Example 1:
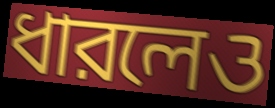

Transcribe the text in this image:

ধারলেও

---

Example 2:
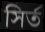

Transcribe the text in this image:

সির্ত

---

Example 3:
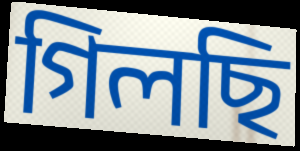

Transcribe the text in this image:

গিলছি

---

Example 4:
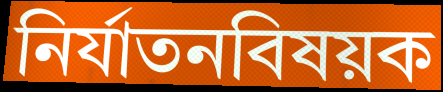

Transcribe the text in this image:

নির্যাতনবিষয়ক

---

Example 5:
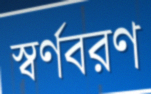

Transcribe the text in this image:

স্বর্ণবরণ